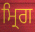
ਮ੍ਰਿਗ